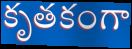
కృతకంగా